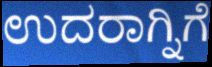
ಉದರಾಗ್ನಿಗೆ